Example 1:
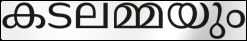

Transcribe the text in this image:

കടലമ്മയും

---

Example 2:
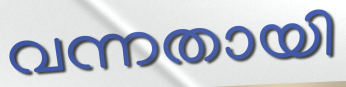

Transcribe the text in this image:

വന്നതായി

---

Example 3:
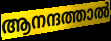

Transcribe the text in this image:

ആനന്ദത്താൽ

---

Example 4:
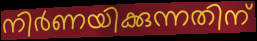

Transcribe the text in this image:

നിർണയിക്കുന്നതിന്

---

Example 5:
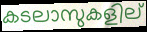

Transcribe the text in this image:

കടലാസുകളില്